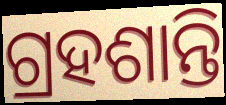
ଗ୍ରହଶାନ୍ତି